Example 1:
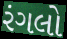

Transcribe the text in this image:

રંગલો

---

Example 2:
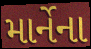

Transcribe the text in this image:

માર્નેના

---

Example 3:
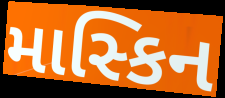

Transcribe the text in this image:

માસ્કિન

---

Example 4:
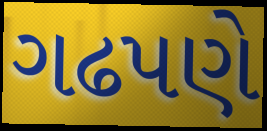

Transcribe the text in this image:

ગઢપણે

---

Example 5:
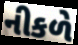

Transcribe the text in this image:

નીકળે